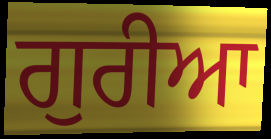
ਗੁਰੀਆ